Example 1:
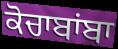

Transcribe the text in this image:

ਕੋਚਾਬਾਂਬਾ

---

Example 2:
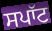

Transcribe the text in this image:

ਸਪਾੱਟ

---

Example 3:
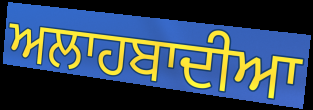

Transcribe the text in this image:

ਅਲਾਹਬਾਦੀਆ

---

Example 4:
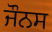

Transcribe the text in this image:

ਜੌਨਸ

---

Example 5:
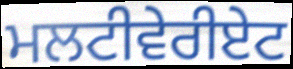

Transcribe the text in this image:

ਮਲਟੀਵੇਰੀਏਟ